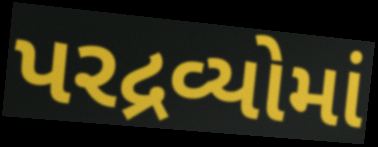
પરદ્રવ્યોમાં